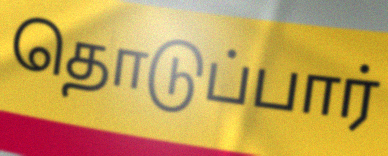
தொடுப்பார்